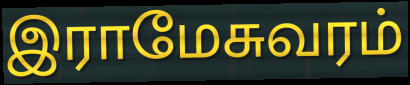
இராமேசுவரம்